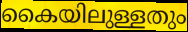
കൈയിലുള്ളതും